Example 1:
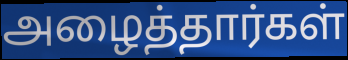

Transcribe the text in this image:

அழைத்தார்கள்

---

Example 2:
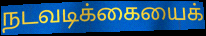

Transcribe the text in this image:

நடவடிக்கையைக்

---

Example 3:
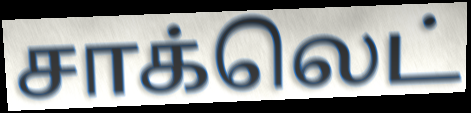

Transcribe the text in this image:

சாக்லெட்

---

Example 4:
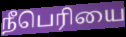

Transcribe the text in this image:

நீபெரியை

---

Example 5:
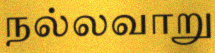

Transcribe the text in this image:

நல்லவாறு